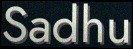
Sadhu